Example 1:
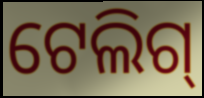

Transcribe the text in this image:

ଟେଲିଗ୍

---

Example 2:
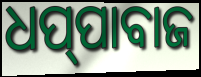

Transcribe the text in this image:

ଧପ୍‌ପାବାଜ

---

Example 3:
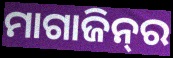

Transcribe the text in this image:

ମାଗାଜିନ୍‍ର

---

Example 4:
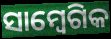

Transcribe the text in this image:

ସାମ୍ବେଗିକ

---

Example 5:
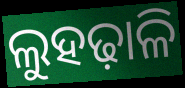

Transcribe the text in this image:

ଲୁହଢ଼ାଳି